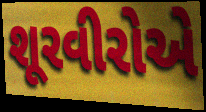
શૂરવીરોએ